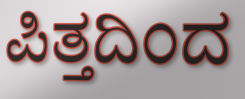
ಪಿತ್ತದಿಂದ